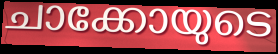
ചാക്കോയുടെ